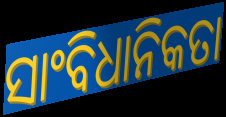
ସାଂବିଧାନିକତା